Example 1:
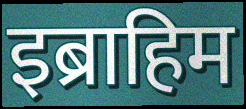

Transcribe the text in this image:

इब्राहिम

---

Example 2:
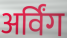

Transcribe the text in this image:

अर्विंग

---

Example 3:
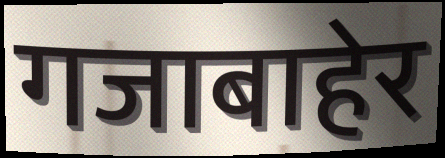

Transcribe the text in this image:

गजाबाहेर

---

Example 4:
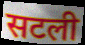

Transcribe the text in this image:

सटली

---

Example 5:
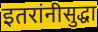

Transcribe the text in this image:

इतरांनीसुद्धा